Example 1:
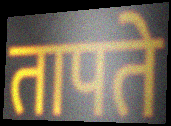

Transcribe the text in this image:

तापते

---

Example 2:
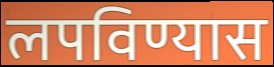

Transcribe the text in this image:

लपविण्यास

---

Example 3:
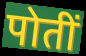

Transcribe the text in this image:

पोतीं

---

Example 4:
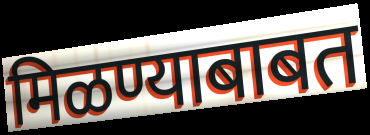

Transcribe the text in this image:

मिळण्याबाबत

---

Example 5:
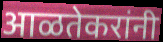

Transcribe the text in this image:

आळतेकरांनी